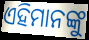
ଏହିମାନଙ୍କୁ